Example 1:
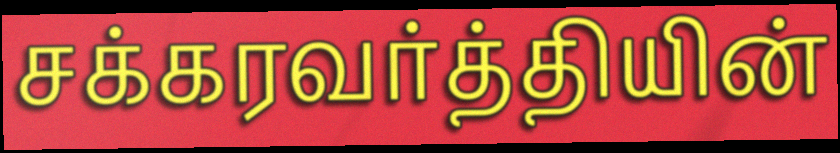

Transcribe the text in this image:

சக்கரவர்த்தியின்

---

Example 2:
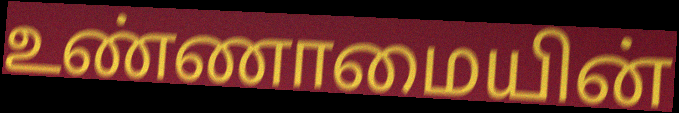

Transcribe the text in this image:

உண்ணாமையின்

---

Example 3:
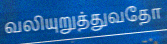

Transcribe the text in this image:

வலியுறுத்துவதோ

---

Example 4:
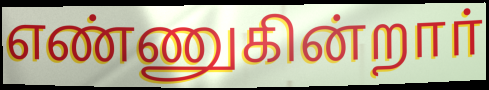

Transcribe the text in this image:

எண்ணுகின்றார்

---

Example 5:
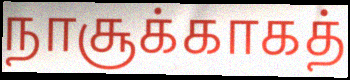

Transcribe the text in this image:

நாசூக்காகத்